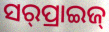
ସର୍‌ପ୍ରାଇଜ୍